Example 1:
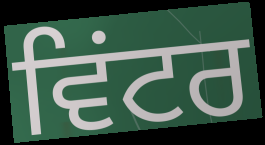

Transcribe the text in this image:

ਵਿਂਟਰ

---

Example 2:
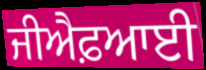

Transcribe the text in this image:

ਜੀਐਫ਼ਆਈ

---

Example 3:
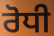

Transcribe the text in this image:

ਰੋਧੀ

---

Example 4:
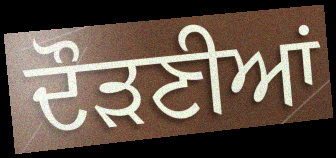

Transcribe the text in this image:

ਦੌੜਣੀਆਂ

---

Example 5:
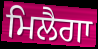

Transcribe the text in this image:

ਮਿਲੈਗਾ